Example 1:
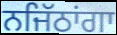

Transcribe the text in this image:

ਨਜਿੱਠਾਂਗਾ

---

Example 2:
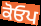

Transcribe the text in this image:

ਕੋਓਪ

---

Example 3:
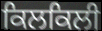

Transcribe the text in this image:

ਕਿਲਕਿਲੀ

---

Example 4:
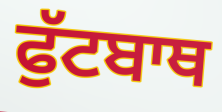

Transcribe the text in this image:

ਫੁੱਟਬਾਥ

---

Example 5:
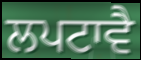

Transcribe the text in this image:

ਲਪਟਾਵੈ